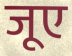
जूए